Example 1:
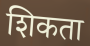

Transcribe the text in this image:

शिकता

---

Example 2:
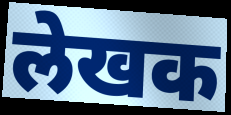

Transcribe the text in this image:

लेखक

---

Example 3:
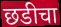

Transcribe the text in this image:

छडीचा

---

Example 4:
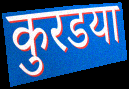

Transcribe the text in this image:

कुरडया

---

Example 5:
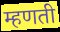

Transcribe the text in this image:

म्हणती